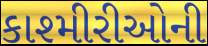
કાશ્મીરીઓની